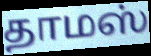
தாமஸ்